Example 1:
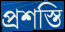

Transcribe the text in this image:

প্রশস্তি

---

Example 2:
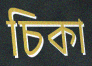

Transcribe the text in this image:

চিকা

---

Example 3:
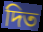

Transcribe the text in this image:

দিত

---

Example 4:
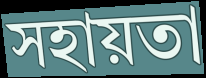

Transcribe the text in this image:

সহায়তা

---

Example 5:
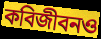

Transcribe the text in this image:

কবিজীবনও